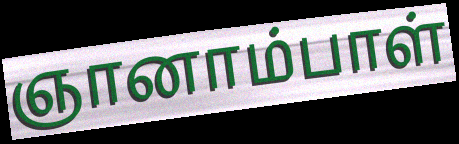
ஞானாம்பாள்